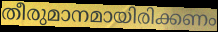
തീരുമാനമായിരിക്കണം